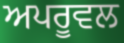
ਅਪਰੂਵਲ